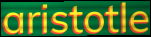
aristotle